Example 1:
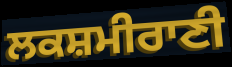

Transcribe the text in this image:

ਲਕਸ਼ਮੀਰਾਣੀ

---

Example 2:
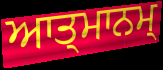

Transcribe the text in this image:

ਆਤ੍ਮਾਨਮ੍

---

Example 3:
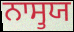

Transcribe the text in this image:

ਨਾਸ੍ਤਯ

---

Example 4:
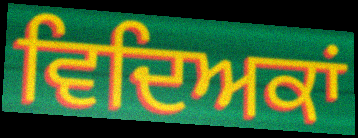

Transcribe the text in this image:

ਵਿਦਿਅਕਾਂ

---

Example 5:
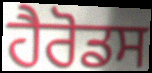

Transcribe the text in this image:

ਹੈਰੋਡਸ